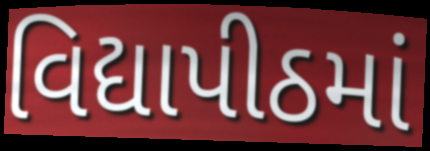
વિદ્યાપીઠમાં